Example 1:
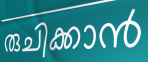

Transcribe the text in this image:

രുചിക്കാൻ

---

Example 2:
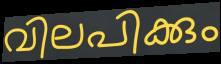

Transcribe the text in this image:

വിലപിക്കും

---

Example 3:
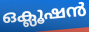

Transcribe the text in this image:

ഒക്ലൂഷൻ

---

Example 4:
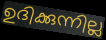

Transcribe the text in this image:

ഉദിക്കുന്നില്ല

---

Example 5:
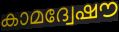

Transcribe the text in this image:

കാമദ്വേഷൗ